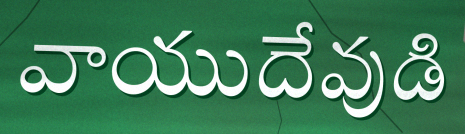
వాయుదేవుడి